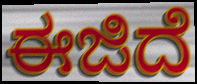
ಈಜಿದೆ